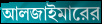
আলজাইমারের